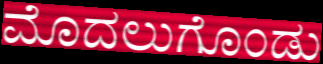
ಮೊದಲುಗೊಂಡು